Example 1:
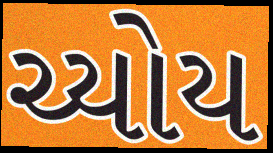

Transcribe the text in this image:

ચ્યોય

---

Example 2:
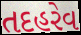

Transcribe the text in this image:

તદહરેવ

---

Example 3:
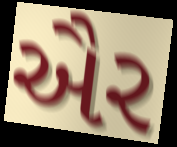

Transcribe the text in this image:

ઐર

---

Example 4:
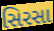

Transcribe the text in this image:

સિરસા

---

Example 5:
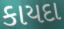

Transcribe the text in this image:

કાયદા